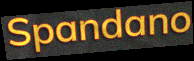
Spandano